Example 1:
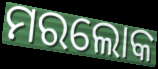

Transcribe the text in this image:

ମରଲୋକ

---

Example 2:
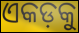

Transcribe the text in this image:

ଏକଡ଼କୁ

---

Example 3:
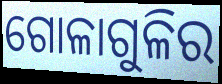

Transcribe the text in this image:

ଗୋଳାଗୁଳିର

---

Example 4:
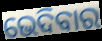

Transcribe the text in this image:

ଭେଦିବାର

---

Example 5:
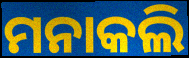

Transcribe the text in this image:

ମନାକଲି